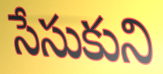
సేసుకుని